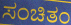
ಸಂಚಿತಂ